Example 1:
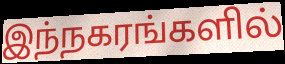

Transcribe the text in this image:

இந்நகரங்களில்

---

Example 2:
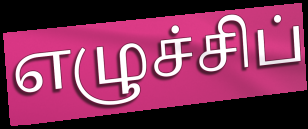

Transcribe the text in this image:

எழுச்சிப்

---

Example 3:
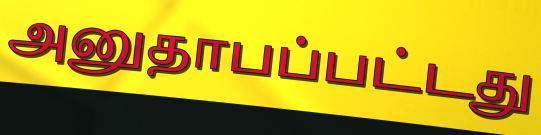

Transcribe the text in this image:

அனுதாபப்பட்டது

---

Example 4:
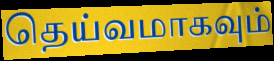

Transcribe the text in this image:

தெய்வமாகவும்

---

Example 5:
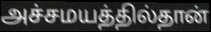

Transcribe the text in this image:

அச்சமயத்தில்தான்